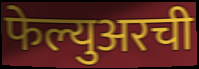
फेल्युअरची